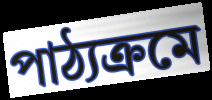
পাঠ্যক্রমে